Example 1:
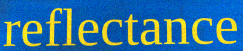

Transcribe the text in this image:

reflectance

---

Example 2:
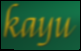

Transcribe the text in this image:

kayu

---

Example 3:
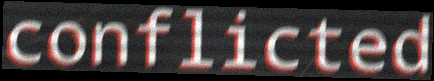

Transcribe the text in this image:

conflicted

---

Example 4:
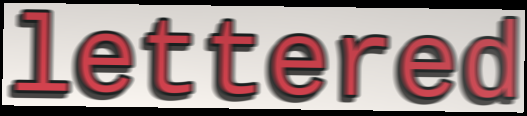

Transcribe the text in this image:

lettered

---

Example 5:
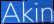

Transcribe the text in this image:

Akin